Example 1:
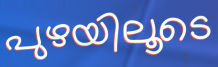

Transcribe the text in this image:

പുഴയിലൂടെ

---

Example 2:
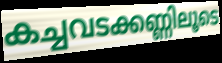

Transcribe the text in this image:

കച്ചവടക്കണ്ണിലൂടെ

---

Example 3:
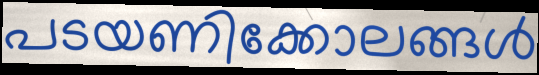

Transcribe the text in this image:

പടയണിക്കോലങ്ങൾ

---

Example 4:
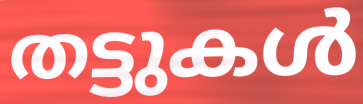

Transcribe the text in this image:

തട്ടുകൾ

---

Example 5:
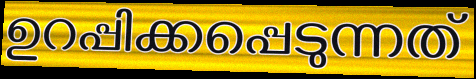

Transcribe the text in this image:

ഉറപ്പിക്കപ്പെടുന്നത്